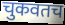
चुकवतच